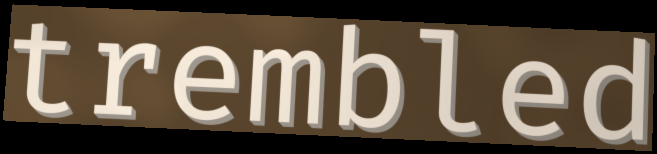
trembled